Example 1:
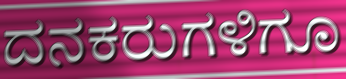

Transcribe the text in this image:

ದನಕರುಗಳಿಗೂ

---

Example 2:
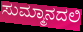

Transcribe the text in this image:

ಸುಮ್ಮಾನದಲಿ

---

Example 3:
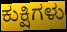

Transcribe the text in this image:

ಕುಕ್ಷಿಗಳು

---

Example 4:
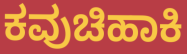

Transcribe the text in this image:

ಕವುಚಿಹಾಕಿ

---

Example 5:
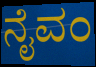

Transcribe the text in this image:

ನೈವಂ